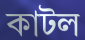
কাটল